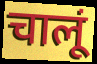
चालूं